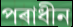
পৰাধীন